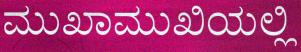
ಮುಖಾಮುಖಿಯಲ್ಲಿ